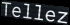
Tellez